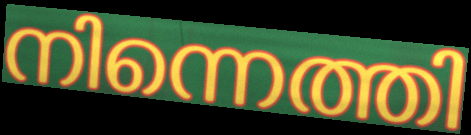
നിന്നെത്തി